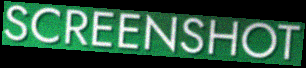
SCREENSHOT